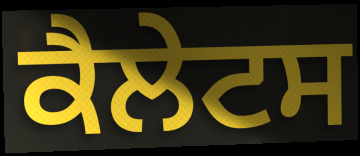
ਕੈਲੇਟਸ